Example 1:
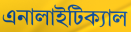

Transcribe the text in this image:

এনালাইটিক্যাল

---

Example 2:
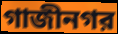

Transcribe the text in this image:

গাজীনগর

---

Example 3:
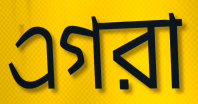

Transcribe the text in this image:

এগরা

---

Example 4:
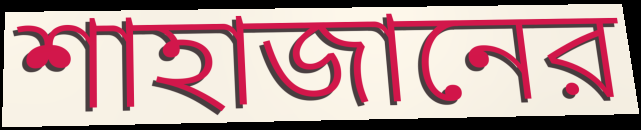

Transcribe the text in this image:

শাহাজানের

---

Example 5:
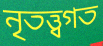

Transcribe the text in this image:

নৃতত্ত্বগত